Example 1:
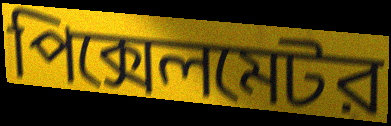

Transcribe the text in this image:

পিক্সেলমেটর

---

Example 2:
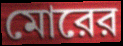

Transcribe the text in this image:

মোরের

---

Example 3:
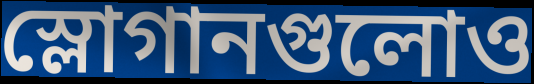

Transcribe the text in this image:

স্লোগানগুলোও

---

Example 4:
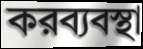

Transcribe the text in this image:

করব্যবস্থা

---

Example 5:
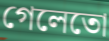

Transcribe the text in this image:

গেলেতো